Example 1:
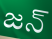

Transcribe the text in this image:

జన్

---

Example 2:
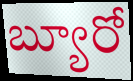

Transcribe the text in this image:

బ్యూరో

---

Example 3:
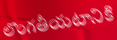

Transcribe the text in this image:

లొంగతీయటానికి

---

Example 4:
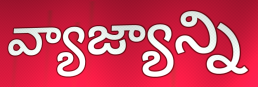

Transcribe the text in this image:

వ్యాజ్యాన్ని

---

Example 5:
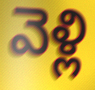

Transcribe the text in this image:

వెళ్లి